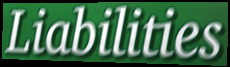
Liabilities